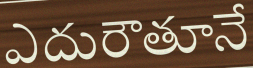
ఎదురౌతూనే